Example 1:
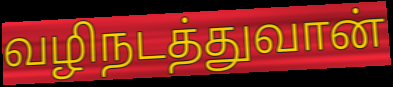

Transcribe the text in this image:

வழிநடத்துவான்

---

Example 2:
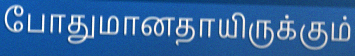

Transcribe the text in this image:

போதுமானதாயிருக்கும்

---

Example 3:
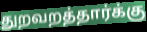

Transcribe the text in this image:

துறவறத்தார்க்கு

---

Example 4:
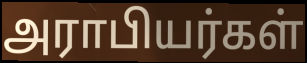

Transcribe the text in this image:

அராபியர்கள்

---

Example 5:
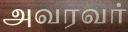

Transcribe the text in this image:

அவரவர்